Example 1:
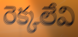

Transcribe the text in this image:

రెక్కలేవి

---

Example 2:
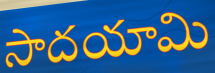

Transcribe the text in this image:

సాదయామి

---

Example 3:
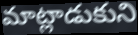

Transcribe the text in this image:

మాట్లాడుకుని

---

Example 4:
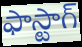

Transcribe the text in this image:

ఫాస్టాగ్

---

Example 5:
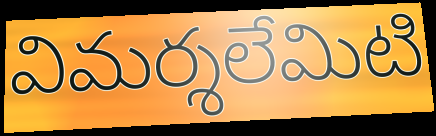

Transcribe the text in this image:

విమర్శలేమిటి